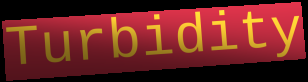
Turbidity